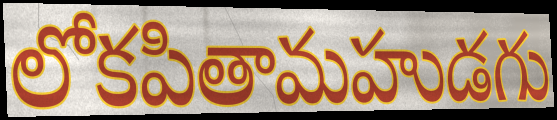
లోకపితామహుడగు